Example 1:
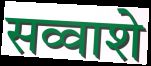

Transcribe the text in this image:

सव्वाशे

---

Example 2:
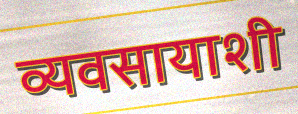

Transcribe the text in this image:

व्यवसायाशी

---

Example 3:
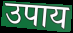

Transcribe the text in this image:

उपाय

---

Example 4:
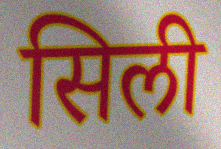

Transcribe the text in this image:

सिली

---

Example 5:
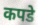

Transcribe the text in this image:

कपडे